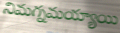
నిమగ్నమయ్యాయి